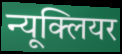
न्यूक्लियर